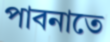
পাবনাতে